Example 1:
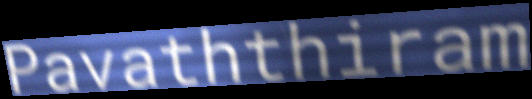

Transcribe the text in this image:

Pavaththiram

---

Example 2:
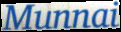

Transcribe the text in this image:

Munnai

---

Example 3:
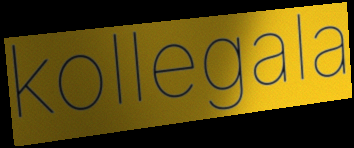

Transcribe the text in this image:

kollegala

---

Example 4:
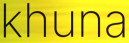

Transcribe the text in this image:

khuna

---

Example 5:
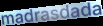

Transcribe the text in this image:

madrasdada